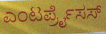
ಎಂಟರ್ಪ್ರೈಸಸ್